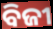
ବିଜୀ